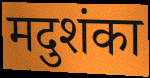
मदुशंका